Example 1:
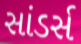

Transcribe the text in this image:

સાંડર્સ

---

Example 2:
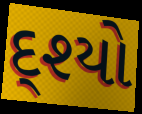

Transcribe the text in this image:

દ્શ્યો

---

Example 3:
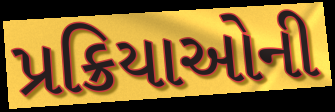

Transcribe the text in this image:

પ્રક્રિયાઓની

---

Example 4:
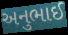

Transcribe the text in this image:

અનુભાઈ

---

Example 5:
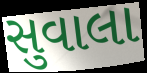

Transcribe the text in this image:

સુવાલા